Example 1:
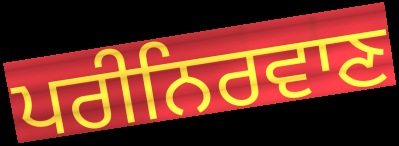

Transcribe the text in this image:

ਪਰੀਨਿਰਵਾਣ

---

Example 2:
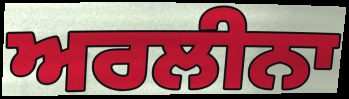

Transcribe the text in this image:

ਅਰਲੀਨਾ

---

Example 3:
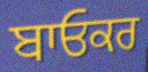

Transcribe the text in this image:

ਬਾਓਕਰ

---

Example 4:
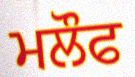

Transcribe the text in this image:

ਮਲੌਫ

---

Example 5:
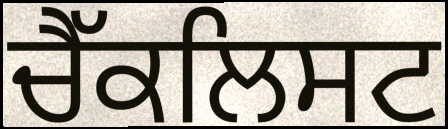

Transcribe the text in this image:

ਚੈੱਕਲਿਸਟ